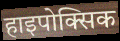
हाइपोक्सिक